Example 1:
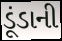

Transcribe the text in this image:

ડૂંડાની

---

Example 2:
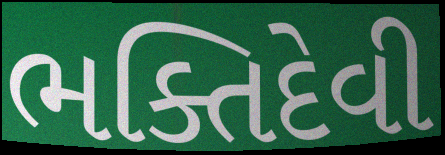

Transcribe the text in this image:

ભક્તિદેવી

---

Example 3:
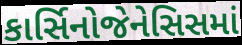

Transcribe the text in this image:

કાર્સિનોજેનેસિસમાં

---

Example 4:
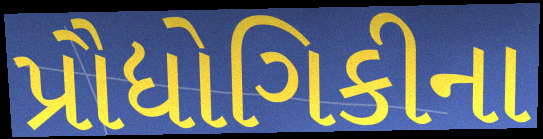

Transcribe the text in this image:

પ્રૌદ્યોગિકીના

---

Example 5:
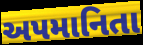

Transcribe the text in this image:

અપમાનિતા